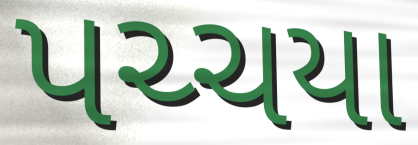
પચ્ચયા